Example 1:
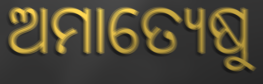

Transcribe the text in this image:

ଅମାତ୍ୟେଷୁ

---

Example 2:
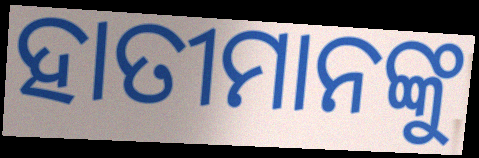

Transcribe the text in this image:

ହାତୀମାନଙ୍କୁ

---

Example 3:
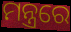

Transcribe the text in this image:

ମନ୍ତ୍ରରେ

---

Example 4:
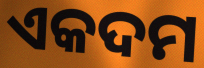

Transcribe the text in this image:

ଏକଦମ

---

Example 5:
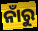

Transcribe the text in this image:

ନାଁରୁ